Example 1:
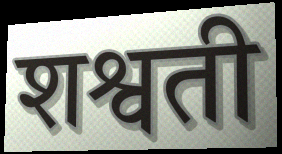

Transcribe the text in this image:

शश्वती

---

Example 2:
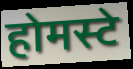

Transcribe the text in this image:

होमस्टे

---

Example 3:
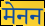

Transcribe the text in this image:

मेनन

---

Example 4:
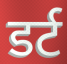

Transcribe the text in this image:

डर्ट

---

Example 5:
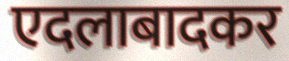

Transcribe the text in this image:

एदलाबादकर